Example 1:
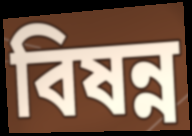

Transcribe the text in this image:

বিষন্ন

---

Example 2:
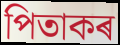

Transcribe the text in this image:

পিতাকৰ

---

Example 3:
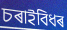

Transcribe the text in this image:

চৰাইবিধৰ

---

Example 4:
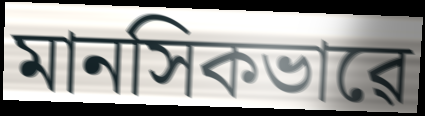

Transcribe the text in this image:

মানসিকভাৱে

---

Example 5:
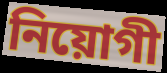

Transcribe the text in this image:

নিয়োগী